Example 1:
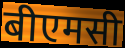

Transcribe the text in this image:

बीएमसी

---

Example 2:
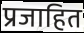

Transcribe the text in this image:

प्रजाहित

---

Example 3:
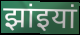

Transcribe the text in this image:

झांइयां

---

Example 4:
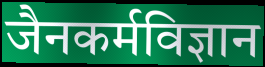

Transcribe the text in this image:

जैनकर्मविज्ञान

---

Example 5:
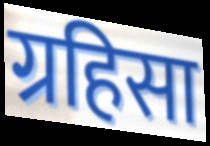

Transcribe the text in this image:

ग्रहिसा